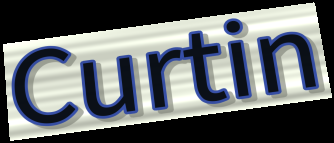
Curtin